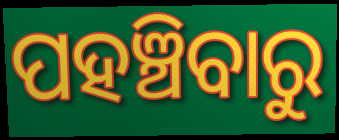
ପହଞ୍ଚିବାରୁ